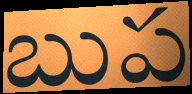
బుప